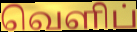
வெளிப்